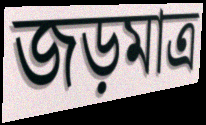
জড়মাত্র